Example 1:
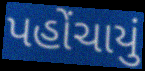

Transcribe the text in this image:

પહોંચાયું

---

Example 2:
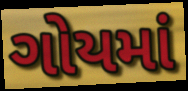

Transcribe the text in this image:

ગોયમાં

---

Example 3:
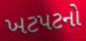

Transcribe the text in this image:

ખટપટનો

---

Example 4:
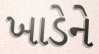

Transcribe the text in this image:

ખાડેને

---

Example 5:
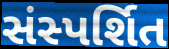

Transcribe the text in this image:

સંસ્પર્શિત